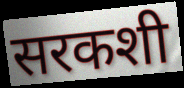
सरकशी